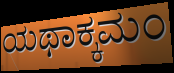
ಯಥಾಕ್ಕಮಂ